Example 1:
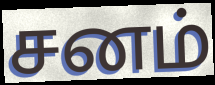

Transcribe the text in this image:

சனம்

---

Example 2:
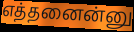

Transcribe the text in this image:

எத்தனைன்னு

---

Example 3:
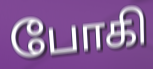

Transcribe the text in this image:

போகி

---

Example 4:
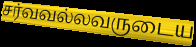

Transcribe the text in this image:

சர்வவல்லவருடைய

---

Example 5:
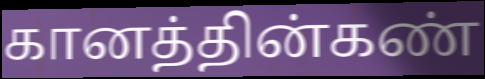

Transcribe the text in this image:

கானத்தின்கண்